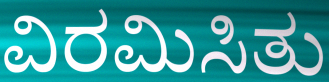
ವಿರಮಿಸಿತು